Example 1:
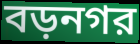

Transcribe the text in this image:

বড়নগর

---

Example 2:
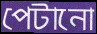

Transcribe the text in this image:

পেটানো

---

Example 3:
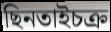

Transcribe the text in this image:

ছিনতাইচক্র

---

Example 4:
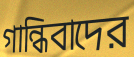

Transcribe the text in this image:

গান্ধিবাদের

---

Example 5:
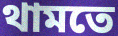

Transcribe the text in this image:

থামতে